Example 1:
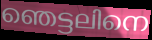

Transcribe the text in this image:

ഞെട്ടലിനെ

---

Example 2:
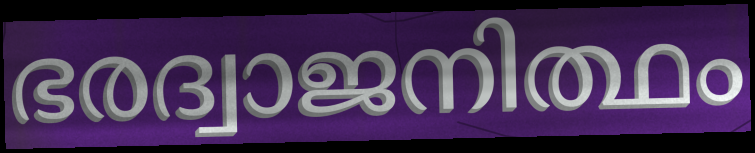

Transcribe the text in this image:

ഭരദ്വാജനിത്ഥം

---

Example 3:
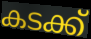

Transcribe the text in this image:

കടക്ക്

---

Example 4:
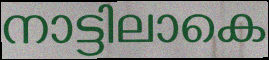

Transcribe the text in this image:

നാട്ടിലാകെ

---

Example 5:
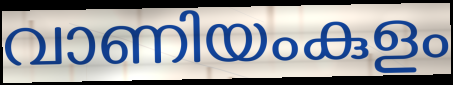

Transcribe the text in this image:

വാണിയംകുളം